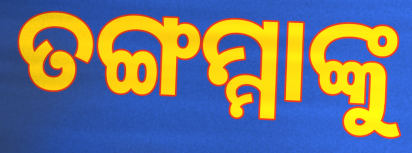
ତଙ୍ଗମ୍ମାଙ୍କୁ